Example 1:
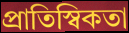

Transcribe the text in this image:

প্রাতিস্বিকতা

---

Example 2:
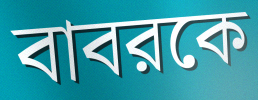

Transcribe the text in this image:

বাবরকে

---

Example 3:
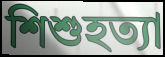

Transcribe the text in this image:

শিশুহত্যা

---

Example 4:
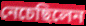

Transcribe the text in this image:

নেচেছিলেন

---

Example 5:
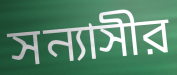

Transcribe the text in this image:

সন্যাসীর